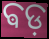
ଵଡ଼